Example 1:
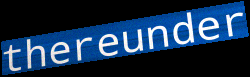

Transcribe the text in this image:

thereunder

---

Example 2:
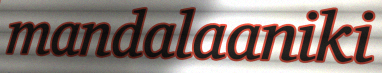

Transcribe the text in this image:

mandalaaniki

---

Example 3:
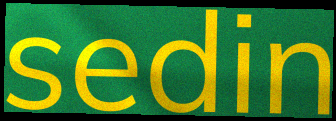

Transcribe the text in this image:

sedin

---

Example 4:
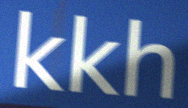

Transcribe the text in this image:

kkh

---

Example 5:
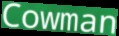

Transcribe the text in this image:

Cowman